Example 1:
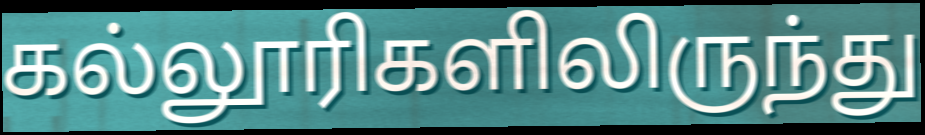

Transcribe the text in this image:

கல்லூரிகளிலிருந்து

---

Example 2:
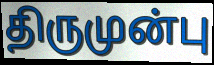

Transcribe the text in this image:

திருமுன்பு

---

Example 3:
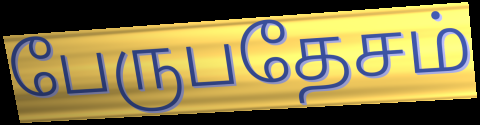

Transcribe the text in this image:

பேருபதேசம்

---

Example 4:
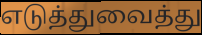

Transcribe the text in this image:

எடுத்துவைத்து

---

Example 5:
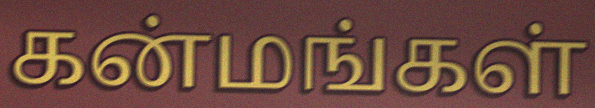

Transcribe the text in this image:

கன்மங்கள்